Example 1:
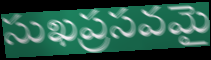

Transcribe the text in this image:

సుఖప్రసవమై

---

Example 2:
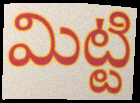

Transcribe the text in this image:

మిట్టి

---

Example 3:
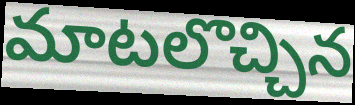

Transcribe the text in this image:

మాటలొచ్చిన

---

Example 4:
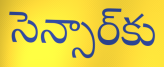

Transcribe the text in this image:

సెన్సార్‌కు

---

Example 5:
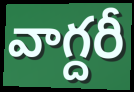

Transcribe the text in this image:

వాగ్దరీ